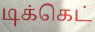
டிக்கெட்